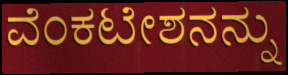
ವೆಂಕಟೇಶನನ್ನು